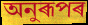
অনুৰূপৰ